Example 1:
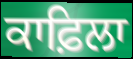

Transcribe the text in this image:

ਕਾਫ਼ਿਲਾ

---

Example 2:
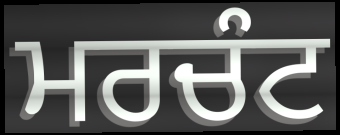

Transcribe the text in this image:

ਮਰਚੰਟ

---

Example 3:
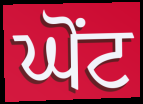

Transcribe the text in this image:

ਘੋਂਟ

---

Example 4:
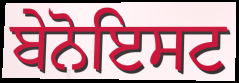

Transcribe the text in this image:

ਬੇਨੋਇਸਟ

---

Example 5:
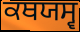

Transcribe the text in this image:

ਕਥਯਸ੍ਵ